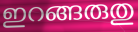
ഇറങ്ങരുതു